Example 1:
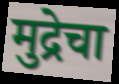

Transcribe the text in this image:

मुद्रेचा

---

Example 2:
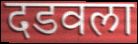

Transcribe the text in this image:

दडवला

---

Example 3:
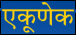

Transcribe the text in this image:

एकूणेक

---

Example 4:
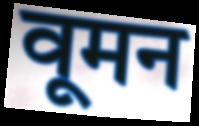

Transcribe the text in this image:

वूमन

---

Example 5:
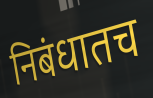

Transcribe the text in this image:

निबंधातच